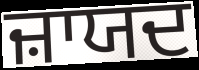
ਜ਼ਾਯਦ